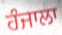
ਹੰਜਾਲਾ